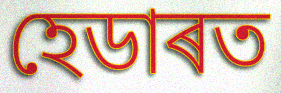
হেডাৰত